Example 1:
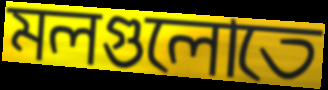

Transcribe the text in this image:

মলগুলোতে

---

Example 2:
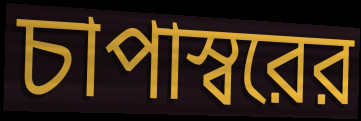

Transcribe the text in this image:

চাপাস্বরের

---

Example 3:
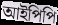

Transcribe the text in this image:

আইপিপি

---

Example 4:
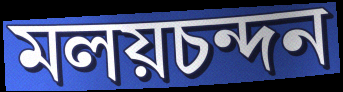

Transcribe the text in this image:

মলয়চন্দন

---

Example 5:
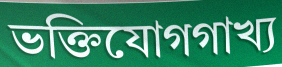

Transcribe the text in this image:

ভক্তিযোগগাখ্য